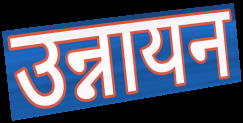
उन्नायन